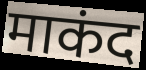
माकंद